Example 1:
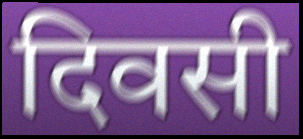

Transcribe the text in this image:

दिवसी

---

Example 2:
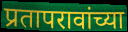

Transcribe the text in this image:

प्रतापरावांच्या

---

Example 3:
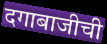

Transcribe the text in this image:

दगाबाजीची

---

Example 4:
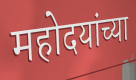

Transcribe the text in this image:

महोदयांच्या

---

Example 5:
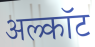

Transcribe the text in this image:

अल्कॉट